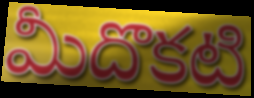
మీదొకటి